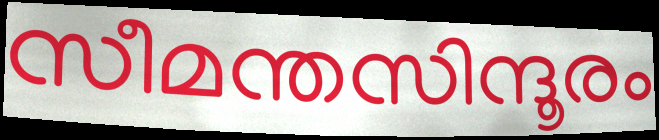
സീമന്തസിന്ദൂരം